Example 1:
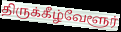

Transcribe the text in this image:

திருக்கீழ்வேளூர்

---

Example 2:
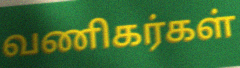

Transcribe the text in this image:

வணிகர்கள்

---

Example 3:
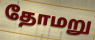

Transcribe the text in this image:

தோமறு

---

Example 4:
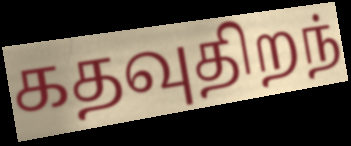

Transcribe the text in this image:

கதவுதிறந்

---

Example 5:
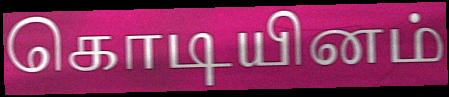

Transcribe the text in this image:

கொடியினம்